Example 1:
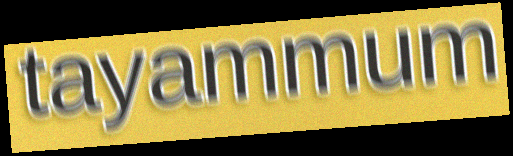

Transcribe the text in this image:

tayammum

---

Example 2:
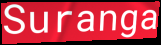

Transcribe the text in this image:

Suranga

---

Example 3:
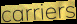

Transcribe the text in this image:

carriers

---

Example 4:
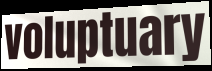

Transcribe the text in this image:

voluptuary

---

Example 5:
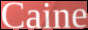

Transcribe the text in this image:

Caine